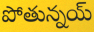
పోతున్నయ్